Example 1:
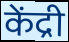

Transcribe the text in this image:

केंद्री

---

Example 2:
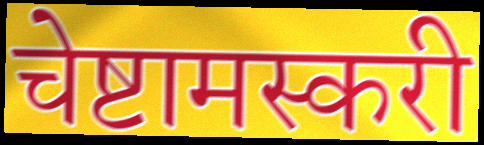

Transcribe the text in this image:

चेष्टामस्करी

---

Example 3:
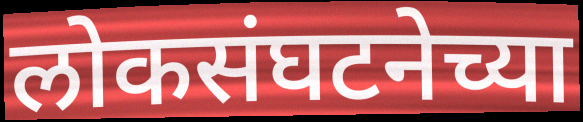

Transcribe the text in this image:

लोकसंघटनेच्या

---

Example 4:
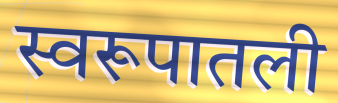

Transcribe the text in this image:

स्वरूपातली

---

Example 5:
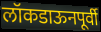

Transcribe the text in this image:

लॉकडाऊनपूर्वी